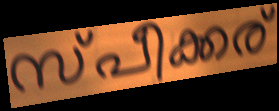
സ്പീക്കര്